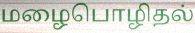
மழைபொழிதல்